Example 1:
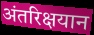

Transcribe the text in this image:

अंतरिक्षयान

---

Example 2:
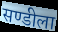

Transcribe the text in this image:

सण्डीला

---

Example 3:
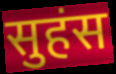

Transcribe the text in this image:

सुहंस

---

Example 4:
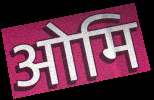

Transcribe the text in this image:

ओमि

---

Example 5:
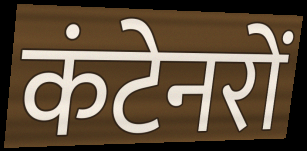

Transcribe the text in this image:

कंटेनरों